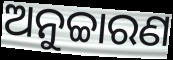
ଅନୁଚ୍ଚାରଣ